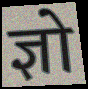
ज्ञो